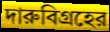
দারুবিগ্রহের